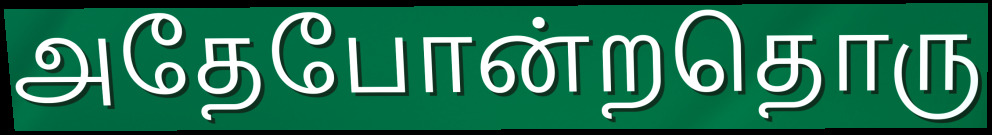
அதேபோன்றதொரு